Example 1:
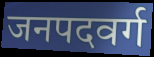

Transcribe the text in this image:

जनपदवर्ग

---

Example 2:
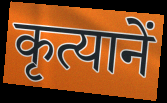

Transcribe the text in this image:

कृत्यानें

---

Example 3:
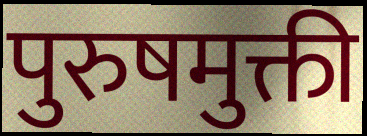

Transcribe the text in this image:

पुरुषमुक्ती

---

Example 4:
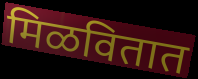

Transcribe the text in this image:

मिळवितात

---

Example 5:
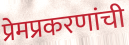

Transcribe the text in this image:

प्रेमप्रकरणांची